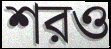
শরও